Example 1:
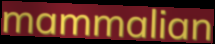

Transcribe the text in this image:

mammalian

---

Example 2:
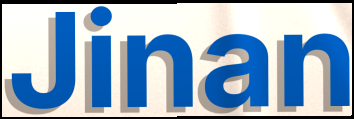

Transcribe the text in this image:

Jinan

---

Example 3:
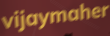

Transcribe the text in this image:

vijaymaher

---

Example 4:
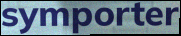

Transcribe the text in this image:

symporter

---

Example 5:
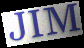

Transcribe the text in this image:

JIM